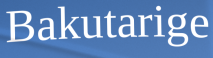
Bakutarige